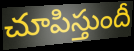
చూపిస్తుందీ